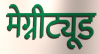
मेग्नीट्यूड